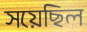
সয়েছিল